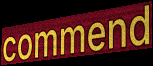
commend